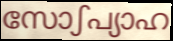
സോഽപ്യാഹ